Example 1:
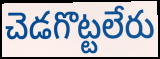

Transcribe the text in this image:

చెడగొట్టలేరు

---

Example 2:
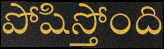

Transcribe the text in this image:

పోషిస్తోంది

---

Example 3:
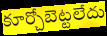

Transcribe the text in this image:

కూర్చోబెట్టలేదు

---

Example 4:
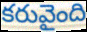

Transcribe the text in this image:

కరువైంది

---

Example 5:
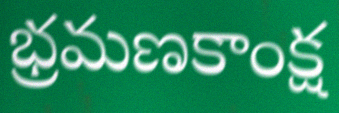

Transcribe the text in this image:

భ్రమణకాంక్ష